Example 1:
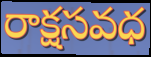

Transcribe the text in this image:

రాక్షసవధ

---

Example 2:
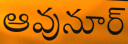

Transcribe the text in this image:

ఆవునూర్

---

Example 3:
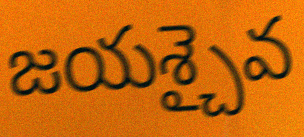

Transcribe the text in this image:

జయశ్చైవ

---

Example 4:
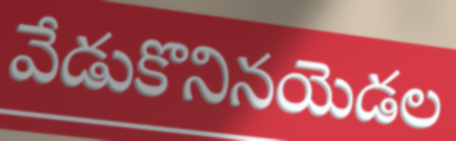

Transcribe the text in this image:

వేడుకొనినయెడల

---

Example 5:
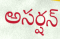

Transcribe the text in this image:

అసర్షన్